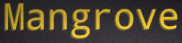
Mangrove